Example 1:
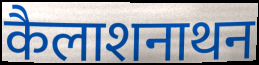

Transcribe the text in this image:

कैलाशनाथन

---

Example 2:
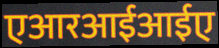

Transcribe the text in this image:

एआरआईआईए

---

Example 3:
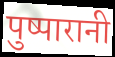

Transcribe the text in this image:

पुष्पारानी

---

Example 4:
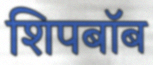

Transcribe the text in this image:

शिपबॉब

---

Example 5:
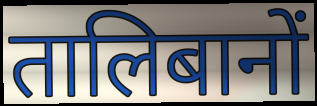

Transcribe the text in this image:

तालिबानों